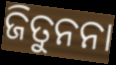
ଜିତୁନନା